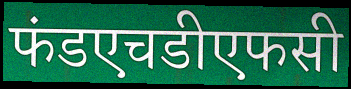
फंडएचडीएफसी